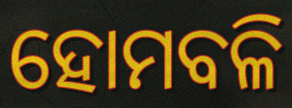
ହୋମବଳି